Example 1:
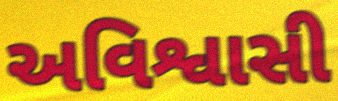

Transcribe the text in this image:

અવિશ્વાસી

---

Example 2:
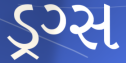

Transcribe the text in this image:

ડ્રગ્સ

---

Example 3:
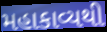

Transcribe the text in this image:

મહાકાવ્યથી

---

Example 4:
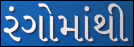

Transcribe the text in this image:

રંગોમાંથી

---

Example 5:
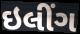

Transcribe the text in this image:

ઇલીંગ